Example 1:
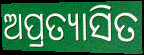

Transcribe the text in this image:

ଅପ୍ରତ୍ୟାସିତ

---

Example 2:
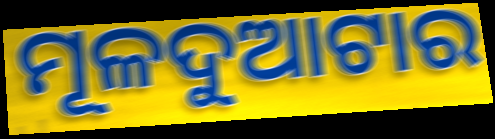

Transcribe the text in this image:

ମୂଳଦୁଆଟାର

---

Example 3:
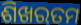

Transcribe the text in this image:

ଶିଖରତମ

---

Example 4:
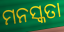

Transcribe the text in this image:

ମନସ୍କତା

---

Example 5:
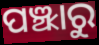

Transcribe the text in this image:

ପଞ୍ଝାରୁ